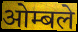
ओम्बले